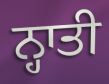
ਨ੍ਹਾਤੀ